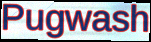
Pugwash